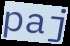
paj